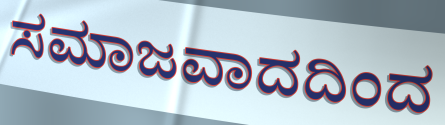
ಸಮಾಜವಾದದಿಂದ